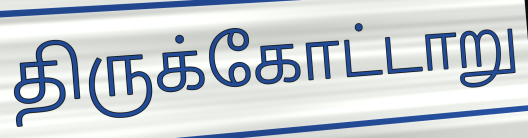
திருக்கோட்டாறு